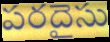
పరదైసు